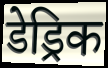
डेड्रिक